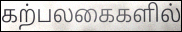
கற்பலகைகளில்